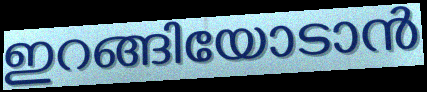
ഇറങ്ങിയോടാൻ